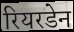
रियरडेन